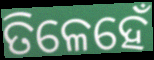
ତିଳେହେଁ